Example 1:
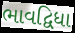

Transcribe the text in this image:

ભાવદ્વિધા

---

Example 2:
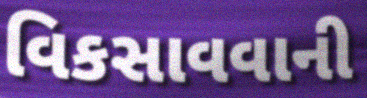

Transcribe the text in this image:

વિકસાવવાની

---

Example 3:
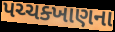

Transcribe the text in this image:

પચ્ચક્ખાણના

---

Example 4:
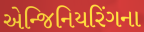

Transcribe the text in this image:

એન્જિનિયરિંગના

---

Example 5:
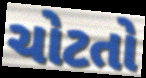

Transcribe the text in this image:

ચોટતો